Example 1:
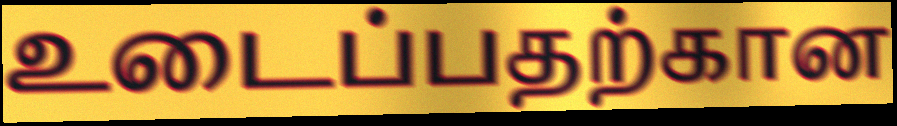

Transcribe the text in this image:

உடைப்பதற்கான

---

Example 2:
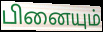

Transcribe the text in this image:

பினையும்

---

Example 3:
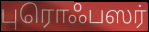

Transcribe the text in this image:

புரொஃபஸர்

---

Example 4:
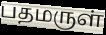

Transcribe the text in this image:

பதமருள்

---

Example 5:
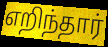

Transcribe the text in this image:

எறிந்தார்